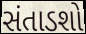
સંતાડશો